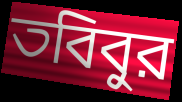
তবিবুর